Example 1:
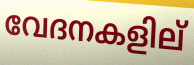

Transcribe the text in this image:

വേദനകളില്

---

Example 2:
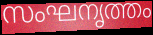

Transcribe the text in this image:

സംഘനൃത്തം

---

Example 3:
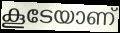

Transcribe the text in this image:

കൂടേയാണ്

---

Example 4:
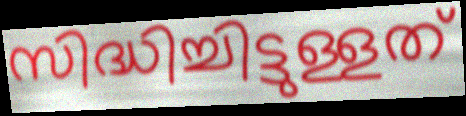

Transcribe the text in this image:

സിദ്ധിച്ചിട്ടുള്ളത്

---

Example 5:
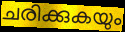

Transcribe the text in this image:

ചരിക്കുകയും